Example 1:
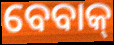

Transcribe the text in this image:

ବେବାକ୍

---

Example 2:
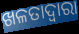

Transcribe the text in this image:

ଖଳତାଦ୍ଵାରା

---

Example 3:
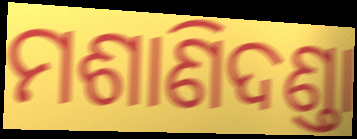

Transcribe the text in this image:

ମଶାଣିଦଣ୍ଡା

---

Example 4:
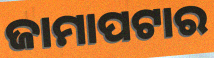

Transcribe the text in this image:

ଜାମାପଟାର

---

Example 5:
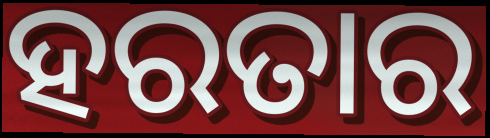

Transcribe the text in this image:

ହରତାର